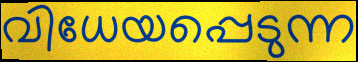
വിധേയപ്പെടുന്ന